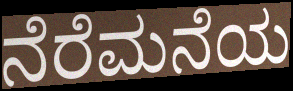
ನೆರೆಮನೆಯ